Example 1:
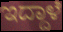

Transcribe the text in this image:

ಇದ್ದಾಳೆ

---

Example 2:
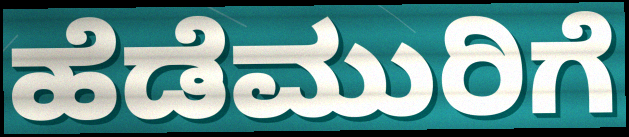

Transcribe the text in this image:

ಹೆಡೆಮುರಿಗೆ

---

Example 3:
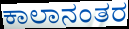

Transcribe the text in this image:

ಕಾಲಾನಂತರ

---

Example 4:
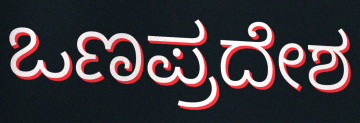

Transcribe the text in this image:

ಒಣಪ್ರದೇಶ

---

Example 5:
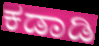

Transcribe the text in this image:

ಕಡಾಡಿ